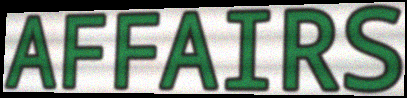
AFFAIRS